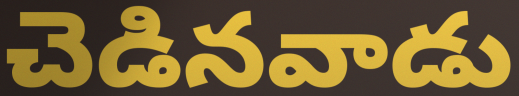
చెడినవాడు